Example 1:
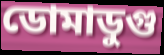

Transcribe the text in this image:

ডোমাডুগু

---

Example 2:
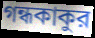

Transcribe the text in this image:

গন্ধকাকুর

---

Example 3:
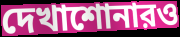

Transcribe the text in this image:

দেখাশোনারও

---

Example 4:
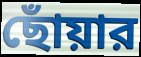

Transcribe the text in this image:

ছোঁয়ার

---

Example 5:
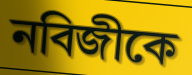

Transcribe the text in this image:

নবিজীকে